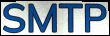
SMTP